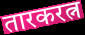
तारकरत्न